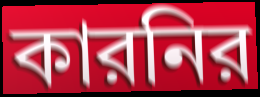
কারনির